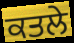
ਕਤਲੇ